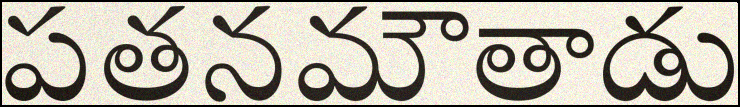
పతనమౌతాడు